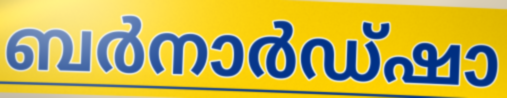
ബർനാർഡ്ഷാ